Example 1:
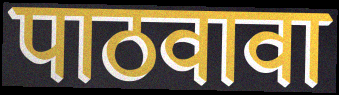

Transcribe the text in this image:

पाठवावा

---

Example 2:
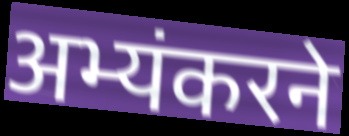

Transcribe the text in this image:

अभ्यंकरने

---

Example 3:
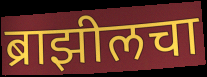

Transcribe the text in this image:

ब्राझीलचा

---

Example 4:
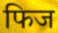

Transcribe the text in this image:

फिज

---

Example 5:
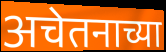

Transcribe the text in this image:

अचेतनाच्या